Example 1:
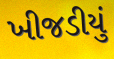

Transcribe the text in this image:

ખીજડીયું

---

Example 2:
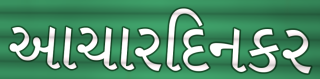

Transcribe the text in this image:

આચારદિનકર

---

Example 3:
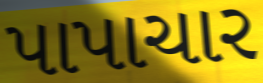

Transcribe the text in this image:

પાપાચાર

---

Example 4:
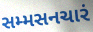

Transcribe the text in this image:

સમ્મસનચારં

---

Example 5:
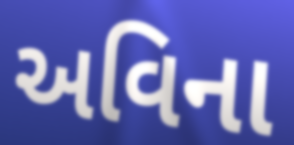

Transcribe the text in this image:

અવિના